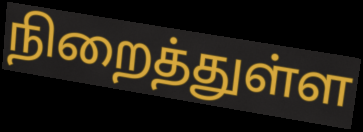
நிறைத்துள்ள